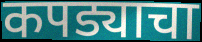
कपड्याचा